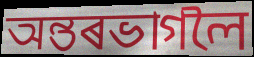
অন্তৰভাগলৈ